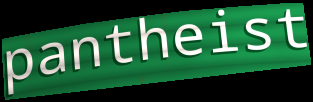
pantheist